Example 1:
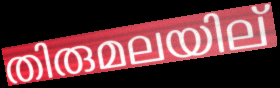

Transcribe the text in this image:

തിരുമലയില്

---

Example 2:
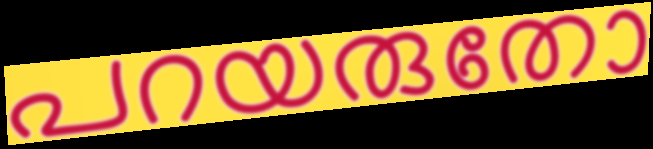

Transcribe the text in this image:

പറയരുതോ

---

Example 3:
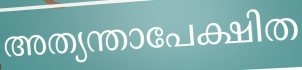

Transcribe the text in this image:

അത്യന്താപേക്ഷിത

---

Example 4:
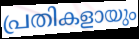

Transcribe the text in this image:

പ്രതികളായും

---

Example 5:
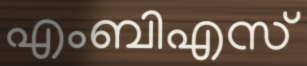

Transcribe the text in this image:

എംബിഎസ്